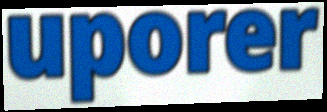
uporer